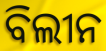
ବିଲୀନ